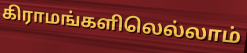
கிராமங்களிலெல்லாம்